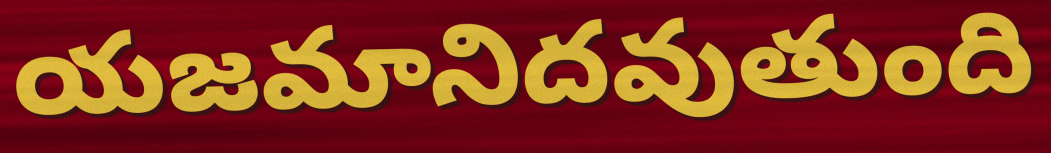
యజమానిదవుతుంది